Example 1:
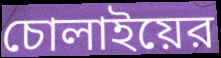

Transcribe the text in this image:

চোলাইয়ের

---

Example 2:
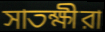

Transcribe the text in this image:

সাতক্ষীরা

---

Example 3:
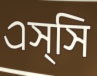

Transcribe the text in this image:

এস্‌সি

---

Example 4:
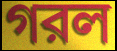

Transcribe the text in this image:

গরল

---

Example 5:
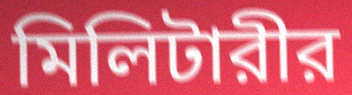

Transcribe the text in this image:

মিলিটারীর